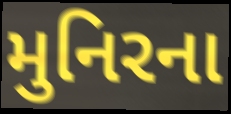
મુનિરના